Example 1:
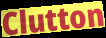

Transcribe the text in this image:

Clutton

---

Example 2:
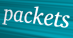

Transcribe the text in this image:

packets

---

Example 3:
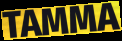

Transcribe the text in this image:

TAMMA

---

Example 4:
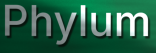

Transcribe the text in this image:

Phylum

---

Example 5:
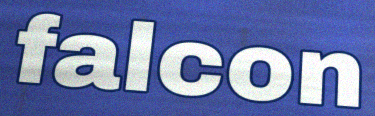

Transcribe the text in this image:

falcon